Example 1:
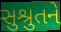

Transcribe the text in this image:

સુશ્રુતને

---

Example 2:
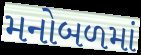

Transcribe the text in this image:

મનોબળમાં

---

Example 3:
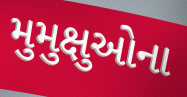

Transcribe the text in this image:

મુમુક્ષુઓના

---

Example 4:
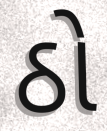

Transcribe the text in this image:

ઠો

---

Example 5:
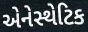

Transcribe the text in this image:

એનેસ્થેટિક